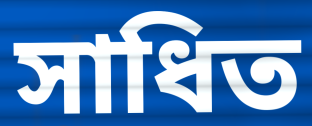
সাধিত